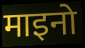
माइनो